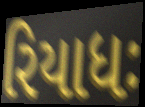
રિયાધઃ